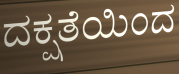
ದಕ್ಷತೆಯಿಂದ